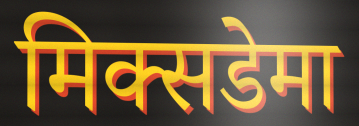
मिक्सडेमा